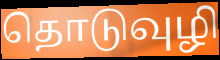
தொடுவுழி